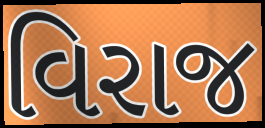
વિરાજ